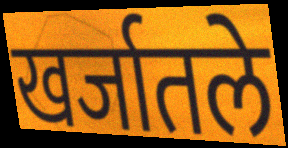
खर्जातले